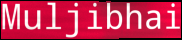
Muljibhai